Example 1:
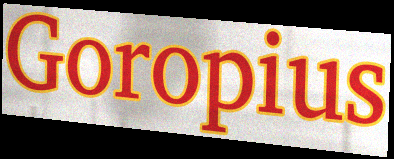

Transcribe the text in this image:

Goropius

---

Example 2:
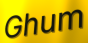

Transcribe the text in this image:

Ghum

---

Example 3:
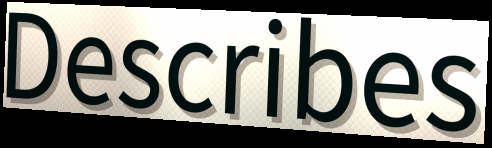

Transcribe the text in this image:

Describes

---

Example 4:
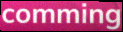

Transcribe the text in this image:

comming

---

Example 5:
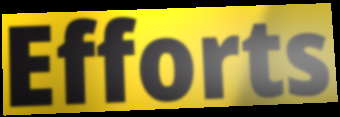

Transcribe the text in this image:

Efforts